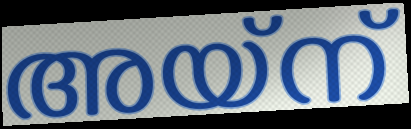
അയ്ന്